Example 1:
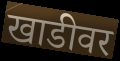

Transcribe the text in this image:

खाडीवर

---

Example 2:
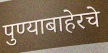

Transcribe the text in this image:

पुण्याबाहेरचे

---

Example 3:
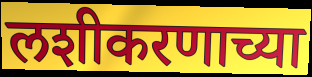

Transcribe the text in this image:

लशीकरणाच्या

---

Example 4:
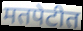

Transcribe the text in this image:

मतपेटीत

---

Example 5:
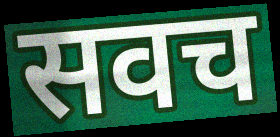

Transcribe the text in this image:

सवच